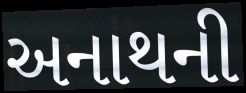
અનાથની